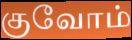
குவோம்